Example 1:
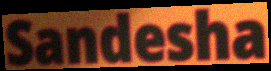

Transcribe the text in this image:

Sandesha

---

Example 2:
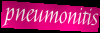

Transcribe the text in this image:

pneumonitis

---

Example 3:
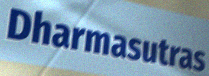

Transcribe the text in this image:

Dharmasutras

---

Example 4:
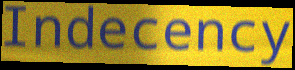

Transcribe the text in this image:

Indecency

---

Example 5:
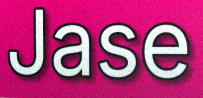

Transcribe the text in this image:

Jase